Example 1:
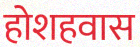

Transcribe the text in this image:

होशहवास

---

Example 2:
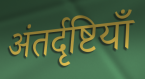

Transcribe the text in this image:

अंतर्दृष्टियाँ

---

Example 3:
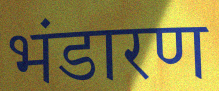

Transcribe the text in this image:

भंडारण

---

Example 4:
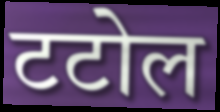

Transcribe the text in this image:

टटोल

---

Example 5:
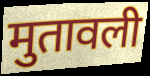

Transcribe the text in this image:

मुतावली